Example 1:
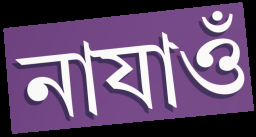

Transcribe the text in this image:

নাযাওঁ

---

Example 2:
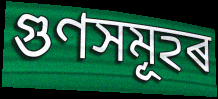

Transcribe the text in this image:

গুণসমূহৰ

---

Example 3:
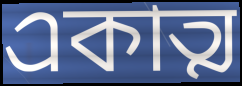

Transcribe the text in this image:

একাত্ম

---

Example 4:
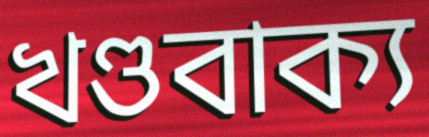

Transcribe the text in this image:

খণ্ডবাক্য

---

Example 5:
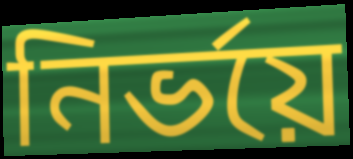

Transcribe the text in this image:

নিৰ্ভয়ে